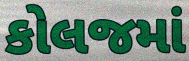
કોલજમાં